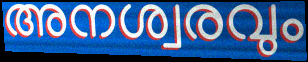
അനശ്വരവും